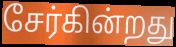
சேர்கின்றது